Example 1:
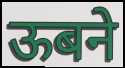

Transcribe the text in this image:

ऊबने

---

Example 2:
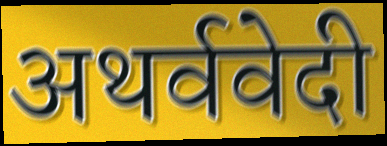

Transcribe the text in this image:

अथर्ववेदी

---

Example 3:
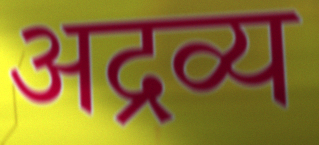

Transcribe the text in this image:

अद्रव्य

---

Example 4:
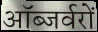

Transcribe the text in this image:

ऑब्जर्वरों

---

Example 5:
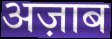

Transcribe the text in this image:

अज़ाब